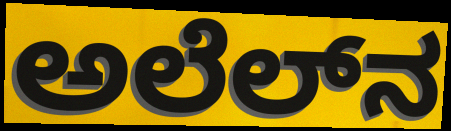
ಅಲೆಲ್‌ನ